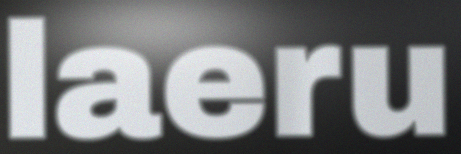
laeru